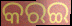
କରଇ